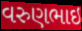
વરુણભાઇ